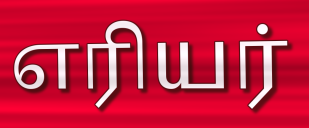
எரியர்